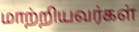
மாற்றியவர்கள்